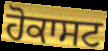
ਹੋਕਾਸਟ